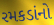
રમકડાંનો